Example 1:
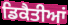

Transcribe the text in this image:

ਡਿਕੈਤੀਆਂ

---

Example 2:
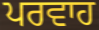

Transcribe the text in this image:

ਪਰਵਾਹ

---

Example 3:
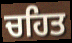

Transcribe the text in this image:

ਚਹਿਤ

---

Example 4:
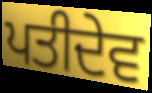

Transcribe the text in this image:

ਪਤੀਦੇਵ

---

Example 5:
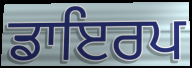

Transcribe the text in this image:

ਡਾਇਰਪ